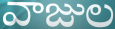
వాజుల